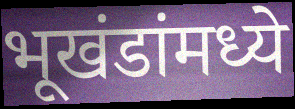
भूखंडांमध्ये